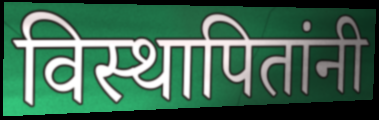
विस्थापितांनी